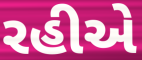
રહીએ